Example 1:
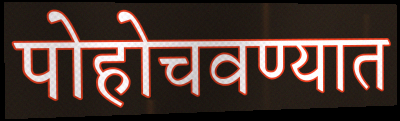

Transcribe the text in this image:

पोहोचवण्यात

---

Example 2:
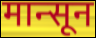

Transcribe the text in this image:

मान्सून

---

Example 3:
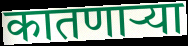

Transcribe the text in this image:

कातणाऱ्या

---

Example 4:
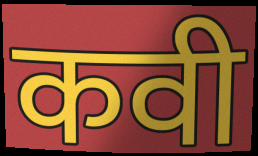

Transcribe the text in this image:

कवी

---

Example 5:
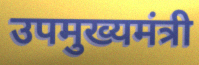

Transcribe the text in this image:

उपमुख्यमंत्री